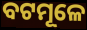
ବଟମୂଳେ